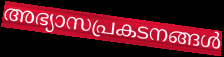
അഭ്യാസപ്രകടനങ്ങൾ